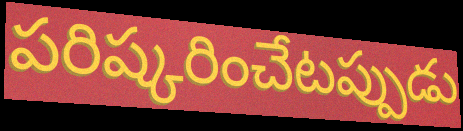
పరిష్కరించేటప్పుడు